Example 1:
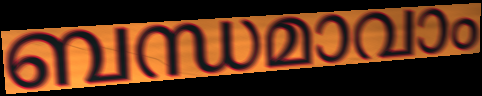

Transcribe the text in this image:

ബന്ധമാവാം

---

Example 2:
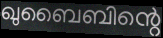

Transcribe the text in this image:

ഖുബൈബിന്റെ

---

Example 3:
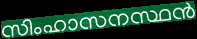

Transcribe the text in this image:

സിംഹാസനസ്ഥൻ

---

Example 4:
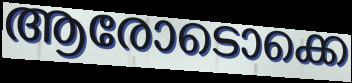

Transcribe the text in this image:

ആരോടൊക്കെ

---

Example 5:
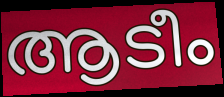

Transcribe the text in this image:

ആടീം